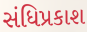
સંધિપ્રકાશ